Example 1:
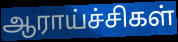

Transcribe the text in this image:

ஆராய்ச்சிகள்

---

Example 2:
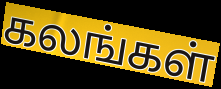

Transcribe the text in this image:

கலங்கள்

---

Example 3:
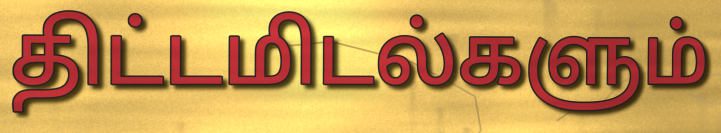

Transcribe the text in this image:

திட்டமிடல்களும்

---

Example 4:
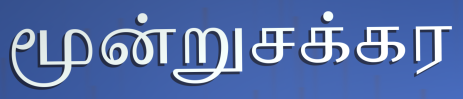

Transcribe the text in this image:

மூன்றுசக்கர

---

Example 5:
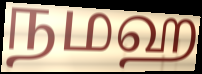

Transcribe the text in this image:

நமஹ